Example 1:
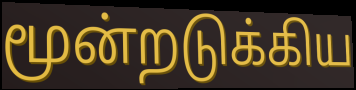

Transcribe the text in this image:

மூன்றடுக்கிய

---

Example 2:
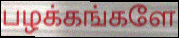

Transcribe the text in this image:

பழக்கங்களே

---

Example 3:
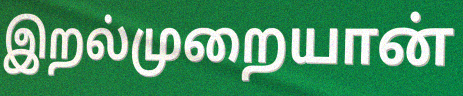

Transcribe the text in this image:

இறல்முறையான்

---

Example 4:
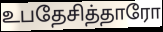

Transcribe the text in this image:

உபதேசித்தாரோ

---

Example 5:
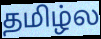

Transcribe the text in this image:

தமிழ்ல